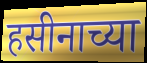
हसीनाच्या